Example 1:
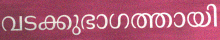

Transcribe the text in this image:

വടക്കുഭാഗത്തായി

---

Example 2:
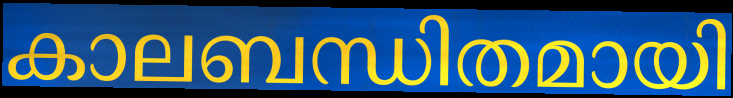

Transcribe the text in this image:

കാലബന്ധിതമായി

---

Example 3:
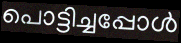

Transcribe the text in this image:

പൊട്ടിച്ചപ്പോൾ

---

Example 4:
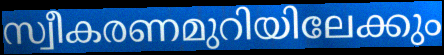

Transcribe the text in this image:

സ്വീകരണമുറിയിലേക്കും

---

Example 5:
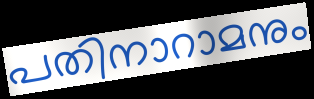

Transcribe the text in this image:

പതിനാറാമനും